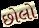
છોલો